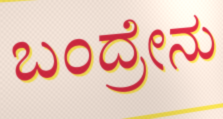
ಬಂದ್ರೇನು